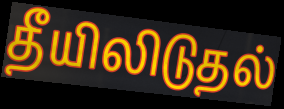
தீயிலிடுதல்